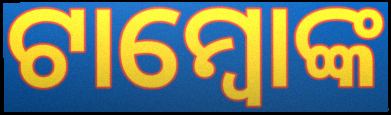
ଟାମ୍ବୋଙ୍କ